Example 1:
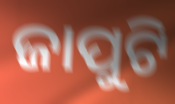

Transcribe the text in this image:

ଜାପୁଟି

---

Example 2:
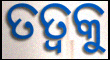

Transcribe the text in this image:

ତତ୍ୱକୁ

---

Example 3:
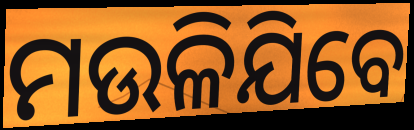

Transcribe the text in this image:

ମଉଳିଯିବେ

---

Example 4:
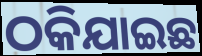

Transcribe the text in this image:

ଠକିଯାଇଛ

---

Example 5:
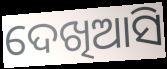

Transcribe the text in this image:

ଦେଖିଆସି